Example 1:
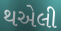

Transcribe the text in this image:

થએલી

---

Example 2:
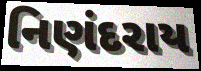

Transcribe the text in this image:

નિણંદરાય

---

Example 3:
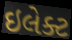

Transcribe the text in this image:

ઇલેક્ટ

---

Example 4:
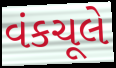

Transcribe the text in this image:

વંકચૂલે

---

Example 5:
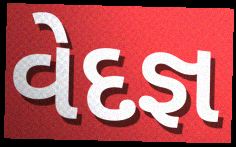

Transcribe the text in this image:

વેદજ્ઞ